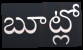
బూట్లో